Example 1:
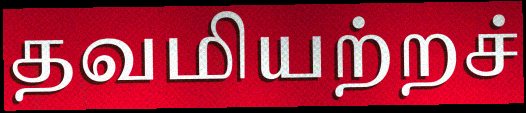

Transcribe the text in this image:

தவமியற்றச்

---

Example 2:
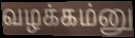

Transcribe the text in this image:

வழக்கம்னு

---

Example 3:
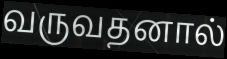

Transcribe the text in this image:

வருவதனால்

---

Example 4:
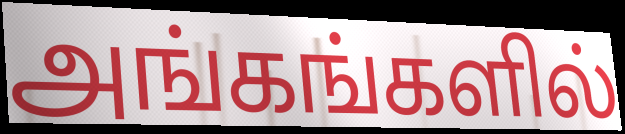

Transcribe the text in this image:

அங்கங்களில்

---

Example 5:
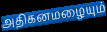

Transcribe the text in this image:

அதிகனமழையும்